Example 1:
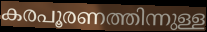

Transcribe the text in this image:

കരപൂരണത്തിന്നുള്ള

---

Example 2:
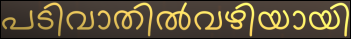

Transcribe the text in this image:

പടിവാതിൽവഴിയായി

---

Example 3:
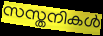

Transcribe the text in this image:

സസ്തനികൾ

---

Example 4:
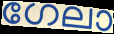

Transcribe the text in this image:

ഗേലാ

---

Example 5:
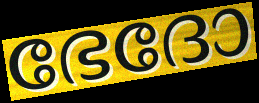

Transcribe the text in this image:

ഭേദോ